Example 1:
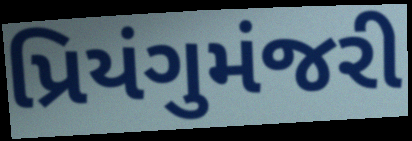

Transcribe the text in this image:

પ્રિયંગુમંજરી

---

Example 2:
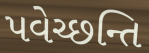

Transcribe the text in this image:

પવેચ્છન્તિ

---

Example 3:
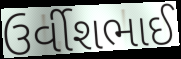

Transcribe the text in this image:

ઉર્વીશભાઈ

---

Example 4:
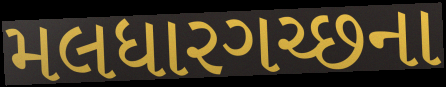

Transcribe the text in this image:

મલધારગચ્છના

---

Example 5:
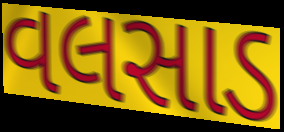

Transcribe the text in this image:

વલસાડ